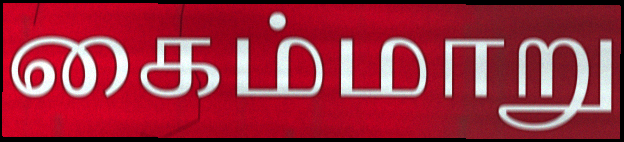
கைம்மாறு